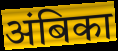
अंबिका